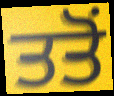
ਤਤੋਂ